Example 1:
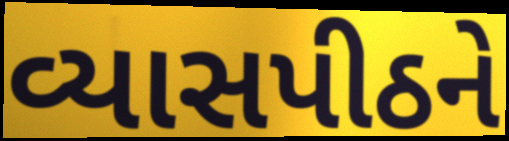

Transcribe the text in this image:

વ્યાસપીઠને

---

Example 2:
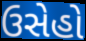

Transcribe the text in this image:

ઉસેહો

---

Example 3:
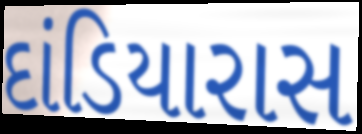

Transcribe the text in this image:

દાંડિયારાસ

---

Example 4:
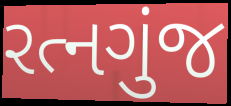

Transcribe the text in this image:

રત્નગુંજ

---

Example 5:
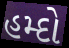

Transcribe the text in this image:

હમ્દો